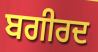
ਬਗੀਰਦ